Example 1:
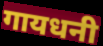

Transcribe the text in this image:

गायधनी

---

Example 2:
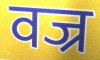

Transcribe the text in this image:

वज्र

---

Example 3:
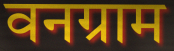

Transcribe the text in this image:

वनग्राम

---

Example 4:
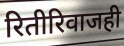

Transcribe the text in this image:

रितीरिवाजही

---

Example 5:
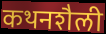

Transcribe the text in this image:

कथनशैली